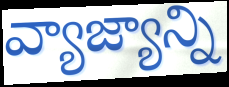
వ్యాజ్యాన్ని